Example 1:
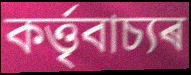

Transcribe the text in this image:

কৰ্ত্তৃবাচ্যৰ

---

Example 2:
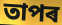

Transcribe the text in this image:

তাপৰ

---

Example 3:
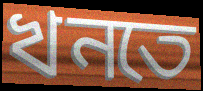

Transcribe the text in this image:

খনতে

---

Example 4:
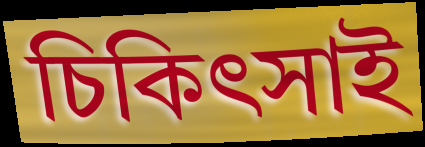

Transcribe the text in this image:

চিকিৎসাই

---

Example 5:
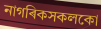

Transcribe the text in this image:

নাগৰিকসকলকো